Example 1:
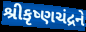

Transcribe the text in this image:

શ્રીકૃષ્ણચંદ્રને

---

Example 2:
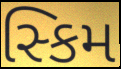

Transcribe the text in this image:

સ્કિમ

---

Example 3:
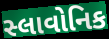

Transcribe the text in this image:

સ્લાવોનિક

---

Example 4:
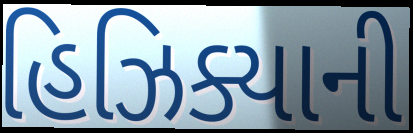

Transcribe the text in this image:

હિઝિક્યાની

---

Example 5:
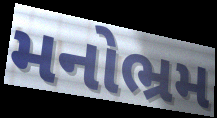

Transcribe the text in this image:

મનોભ્રમ